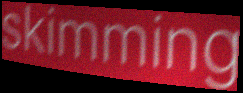
skimming